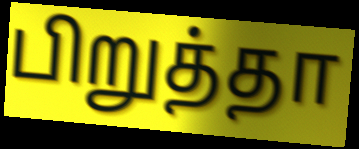
பிறுத்தா